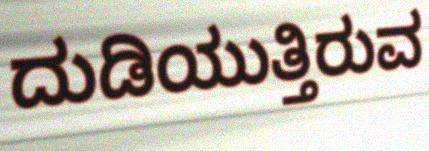
ದುಡಿಯುತ್ತಿರುವ